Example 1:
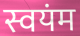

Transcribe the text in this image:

स्वयंम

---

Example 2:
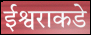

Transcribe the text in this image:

ईश्वराकडे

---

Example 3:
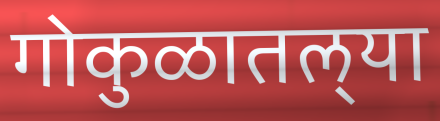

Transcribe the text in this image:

गोकुळातल्या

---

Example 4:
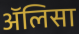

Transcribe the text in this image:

ॲलिसा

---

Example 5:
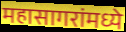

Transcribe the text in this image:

महासागरांमध्ये